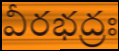
వీరభద్రః